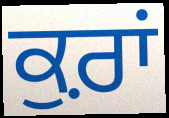
ਕ਼ੁਰਾਂ